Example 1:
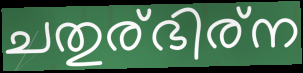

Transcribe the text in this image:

ചതുര്ഭിര്ന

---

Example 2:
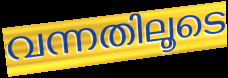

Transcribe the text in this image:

വന്നതിലൂടെ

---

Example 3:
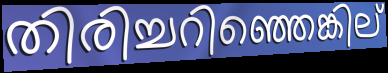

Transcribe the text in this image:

തിരിച്ചറിഞ്ഞെങ്കില്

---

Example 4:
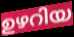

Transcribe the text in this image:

ഉഴറിയ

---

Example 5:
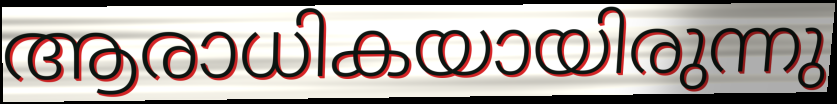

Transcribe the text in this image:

ആരാധികയായിരുന്നു